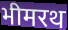
भीमरथ